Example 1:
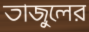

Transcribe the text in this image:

তাজুলের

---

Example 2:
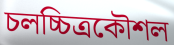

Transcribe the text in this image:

চলচ্চিত্রকৌশল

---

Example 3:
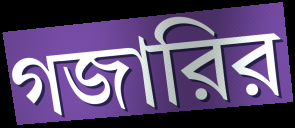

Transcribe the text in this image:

গজারির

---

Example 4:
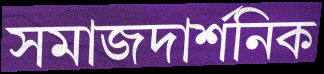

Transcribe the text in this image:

সমাজদার্শনিক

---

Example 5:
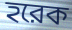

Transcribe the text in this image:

হরেক